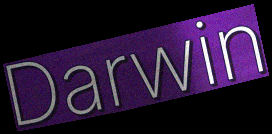
Darwin